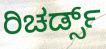
ರಿಚರ್ಡ್ಸ್